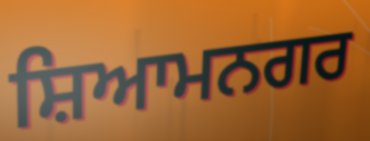
ਸ਼ਿਆਮਨਗਰ